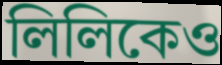
লিলিকেও